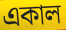
একাল